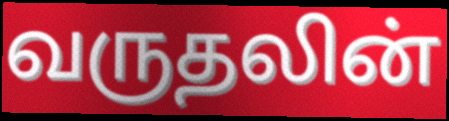
வருதலின்